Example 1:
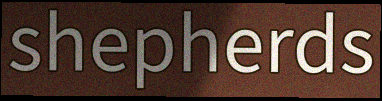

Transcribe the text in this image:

shepherds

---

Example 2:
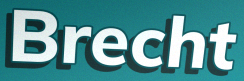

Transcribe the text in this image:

Brecht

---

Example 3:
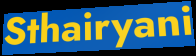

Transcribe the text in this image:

Sthairyani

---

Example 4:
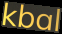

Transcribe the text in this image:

kbal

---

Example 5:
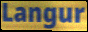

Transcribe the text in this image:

Langur